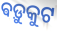
ଵଡ଼ୁକୁଟ